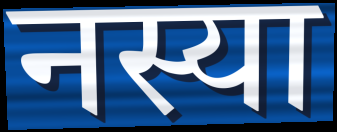
नस्या